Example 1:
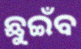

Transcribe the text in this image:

ଛୁଇଁବ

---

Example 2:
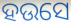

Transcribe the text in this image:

ହଉସେ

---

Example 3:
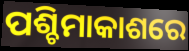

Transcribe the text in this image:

ପଶ୍ଚିମାକାଶରେ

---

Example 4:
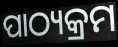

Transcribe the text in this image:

ପାଠ୍ୟକ୍ରମ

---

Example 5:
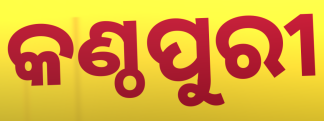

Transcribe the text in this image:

କଣ୍ଠପୁରୀ